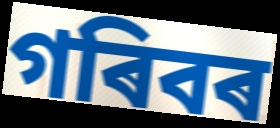
গৰিবৰ